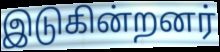
இடுகின்றனர்